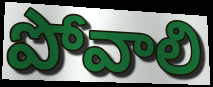
పోవాలి